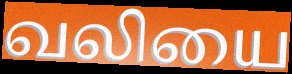
வலியை